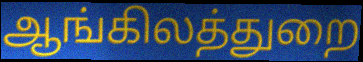
ஆங்கிலத்துறை